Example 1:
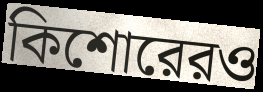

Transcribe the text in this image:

কিশোরেরও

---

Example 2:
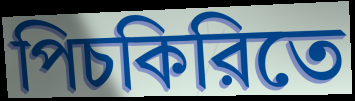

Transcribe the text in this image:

পিচকিরিতে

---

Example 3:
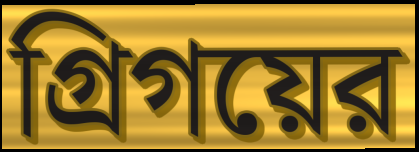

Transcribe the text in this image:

গ্রিগয়ের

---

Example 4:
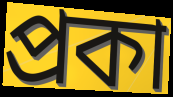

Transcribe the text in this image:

প্রকা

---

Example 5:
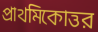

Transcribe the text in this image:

প্রাথমিকোত্তর